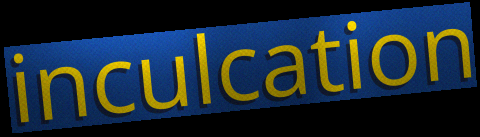
inculcation